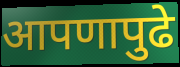
आपणापुढे